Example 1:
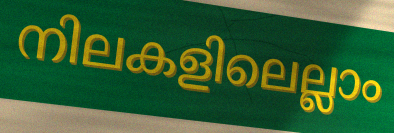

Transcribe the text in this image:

നിലകളിലെല്ലാം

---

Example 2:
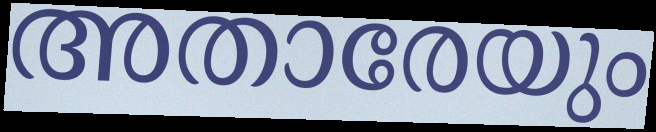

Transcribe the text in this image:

അതാരേയും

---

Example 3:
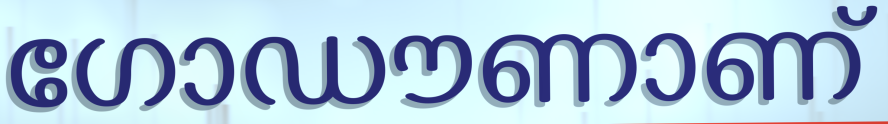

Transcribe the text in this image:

ഗോഡൗണാണ്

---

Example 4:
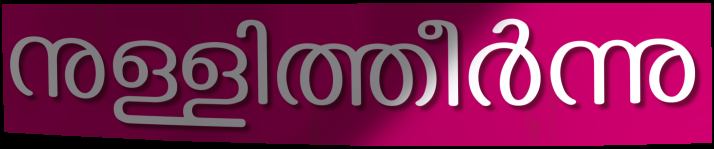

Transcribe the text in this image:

നുള്ളിത്തീർന്നു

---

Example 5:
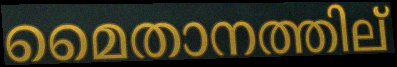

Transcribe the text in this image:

മൈതാനത്തില്